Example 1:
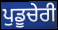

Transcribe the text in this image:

ਪੁਡੂਚੇਰੀ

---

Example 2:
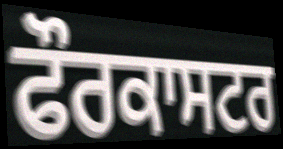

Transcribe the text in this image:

ਫੌਰਕਾਸਟਰ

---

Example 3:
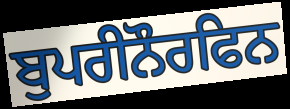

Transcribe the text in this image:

ਬੁਪਰੀਨੌਰਫਿਨ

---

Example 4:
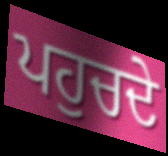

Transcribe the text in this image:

ਪਹੁਚਦੇ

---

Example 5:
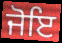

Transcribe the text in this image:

ਜੋਇ